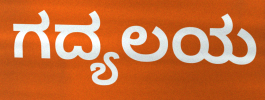
ಗದ್ಯಲಯ